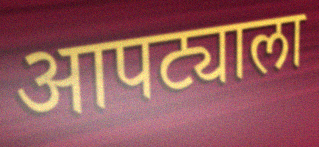
आपट्याला